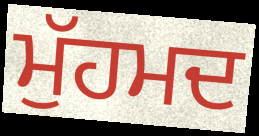
ਮੁੱਹਮਦ